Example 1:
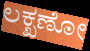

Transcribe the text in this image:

ಲಕ್ಖಣೋ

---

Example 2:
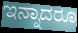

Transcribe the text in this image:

ಇನ್ನಾದರೂ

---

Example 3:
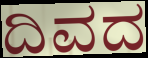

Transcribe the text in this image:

ದಿವದ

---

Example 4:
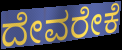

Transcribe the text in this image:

ದೇವರೇಕೆ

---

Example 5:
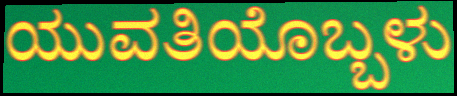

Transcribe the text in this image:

ಯುವತಿಯೊಬ್ಬಳು